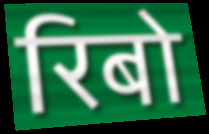
रिबो